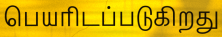
பெயரிடப்படுகிறது